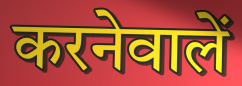
करनेवालें